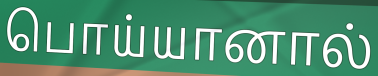
பொய்யானால்